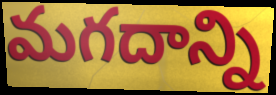
మగదాన్ని